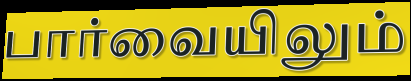
பார்வையிலும்